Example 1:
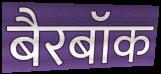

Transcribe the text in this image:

बैरबॉक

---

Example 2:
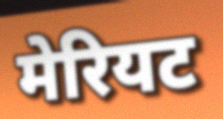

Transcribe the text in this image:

मेरियट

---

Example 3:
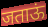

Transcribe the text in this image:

जताऊं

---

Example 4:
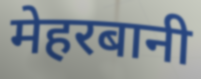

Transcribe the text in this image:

मेहरबानी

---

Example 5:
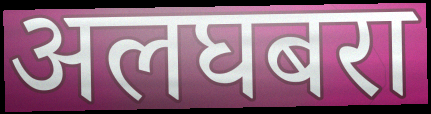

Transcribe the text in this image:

अलघबरा